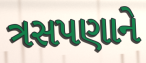
ત્રસપણાને